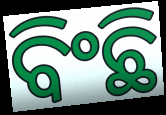
ବିଂଛି